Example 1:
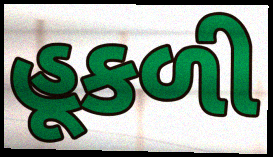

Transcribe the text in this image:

હૂકળી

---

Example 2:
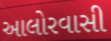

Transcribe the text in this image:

આલોરવાસી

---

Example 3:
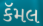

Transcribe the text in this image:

કૅમલ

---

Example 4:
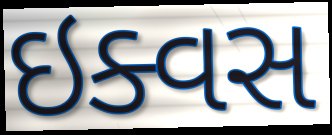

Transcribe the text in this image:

ઇક્વસ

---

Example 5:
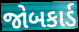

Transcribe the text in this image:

જોબકાર્ડ